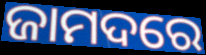
ଜାମଦରେ